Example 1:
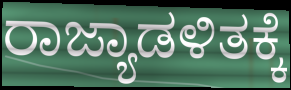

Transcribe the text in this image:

ರಾಜ್ಯಾಡಳಿತಕ್ಕೆ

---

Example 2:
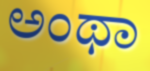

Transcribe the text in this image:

ಅಂಥಾ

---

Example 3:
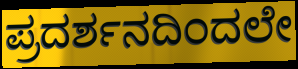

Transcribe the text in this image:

ಪ್ರದರ್ಶನದಿಂದಲೇ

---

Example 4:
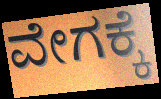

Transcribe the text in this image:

ವೇಗಕ್ಕೆ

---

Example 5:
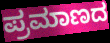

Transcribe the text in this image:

ಪ್ರಮಾಣದ